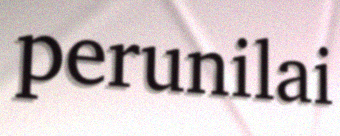
perunilai